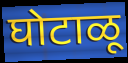
घोटाळू